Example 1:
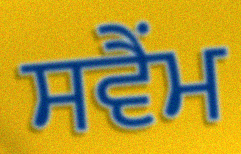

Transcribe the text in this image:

ਸਵੈਂਮ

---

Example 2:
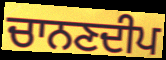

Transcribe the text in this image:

ਚਾਨਣਦੀਪ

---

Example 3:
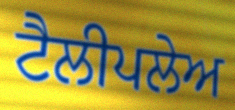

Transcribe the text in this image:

ਟੈਲੀਪਲੇਅ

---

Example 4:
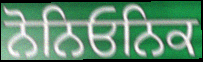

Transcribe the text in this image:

ਨੋਨਿਓਨਿਕ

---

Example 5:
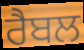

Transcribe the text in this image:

ਰੈਬਲ